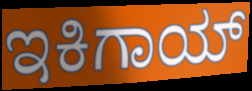
ಇಕಿಗಾಯ್